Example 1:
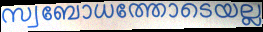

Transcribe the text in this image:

സ്വബോധത്തോടെയല്ല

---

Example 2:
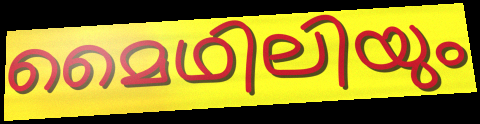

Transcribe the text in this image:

മൈഥിലിയും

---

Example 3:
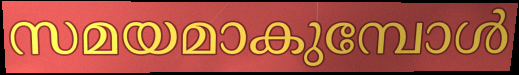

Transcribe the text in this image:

സമയമാകുമ്പോൾ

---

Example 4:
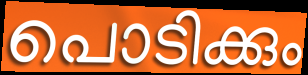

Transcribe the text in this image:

പൊടിക്കും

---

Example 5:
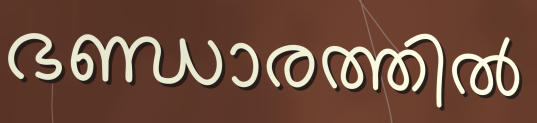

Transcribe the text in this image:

ഭണ്ഡാരത്തിൽ